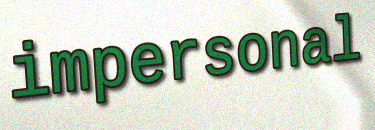
impersonal